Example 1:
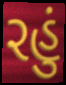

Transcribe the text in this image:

રહું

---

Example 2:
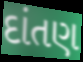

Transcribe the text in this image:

દાંતણ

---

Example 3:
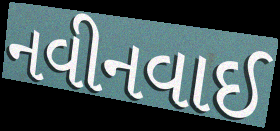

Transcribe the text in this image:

નવીનવાઈ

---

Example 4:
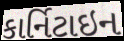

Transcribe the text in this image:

કાર્નિટાઇન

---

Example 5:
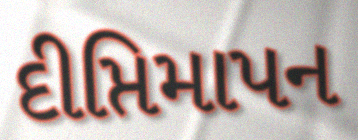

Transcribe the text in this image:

દીપ્તિમાપન